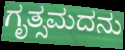
ಗೃತ್ಸಮದನು